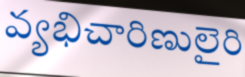
వ్యభిచారిణులైరి